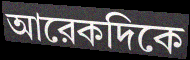
আরেকদিকে